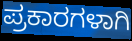
ಪ್ರಕಾರಗಳಾಗಿ